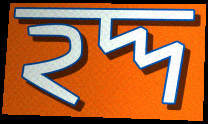
হদ্দ